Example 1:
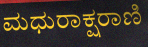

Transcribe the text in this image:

ಮಧುರಾಕ್ಷರಾಣಿ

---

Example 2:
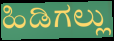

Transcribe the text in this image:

ಹಿಡಿಗಲ್ಲು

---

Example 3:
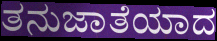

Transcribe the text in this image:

ತನುಜಾತೆಯಾದ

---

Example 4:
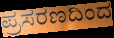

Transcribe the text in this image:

ಪ್ರಸರಣದಿಂದ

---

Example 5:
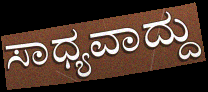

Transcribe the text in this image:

ಸಾಧ್ಯವಾದ್ದು